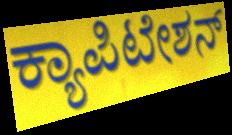
ಕ್ಯಾಪಿಟೇಶನ್